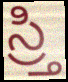
స్ర్తి